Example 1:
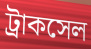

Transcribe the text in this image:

ট্রাকসেল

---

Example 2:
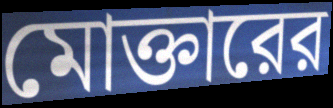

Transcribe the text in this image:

মোক্তারের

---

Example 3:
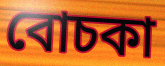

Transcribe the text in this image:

বোচকা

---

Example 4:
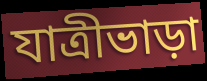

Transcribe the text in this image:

যাত্রীভাড়া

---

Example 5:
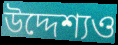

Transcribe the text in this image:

উদ্দেশ্যও